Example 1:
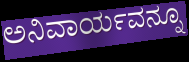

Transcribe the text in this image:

ಅನಿವಾರ್ಯವನ್ನೂ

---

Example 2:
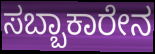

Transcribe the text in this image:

ಸಬ್ಬಾಕಾರೇನ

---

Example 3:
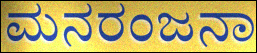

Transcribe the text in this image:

ಮನರಂಜನಾ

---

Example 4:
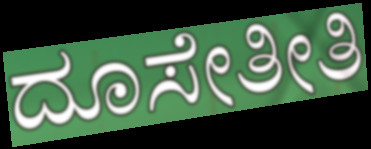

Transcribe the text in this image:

ದೂಸೇತೀತಿ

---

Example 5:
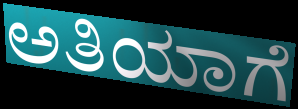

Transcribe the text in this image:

ಅತಿಯಾಗೆ